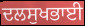
ਦਲਸੁਖਭਾਈ